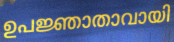
ഉപജ്ഞാതാവായി